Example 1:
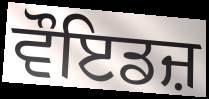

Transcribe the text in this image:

ਵੌਇਡਜ਼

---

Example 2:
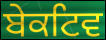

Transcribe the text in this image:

ਬੇਕਟਿਵ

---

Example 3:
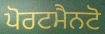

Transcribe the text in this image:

ਪੋਰਟਮੈਨਟੋ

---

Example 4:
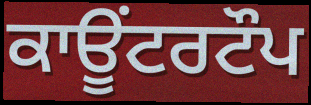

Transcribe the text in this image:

ਕਾਊਂਟਰਟੌਪ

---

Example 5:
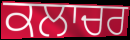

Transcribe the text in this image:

ਕਲਾਚਰ